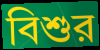
বিশুর